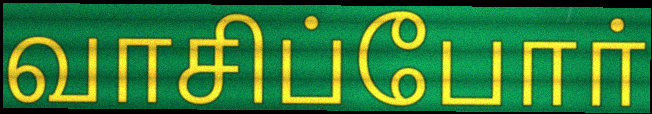
வாசிப்போர்